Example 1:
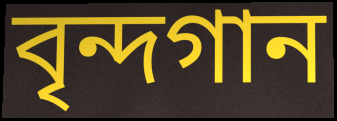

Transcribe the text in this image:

বৃন্দগান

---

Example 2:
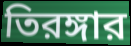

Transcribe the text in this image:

তিরঙ্গার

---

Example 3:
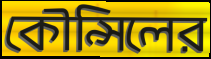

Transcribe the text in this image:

কৌন্সিলের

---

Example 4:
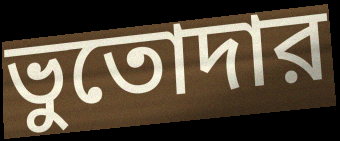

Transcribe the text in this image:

ভুতোদার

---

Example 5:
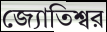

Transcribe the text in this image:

জ্যোতিশ্বর